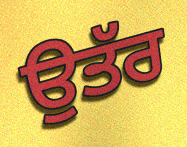
ਉਤੱਰ